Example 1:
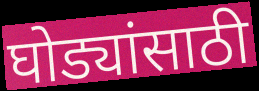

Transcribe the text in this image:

घोड्यांसाठी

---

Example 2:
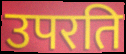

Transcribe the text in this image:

उपरति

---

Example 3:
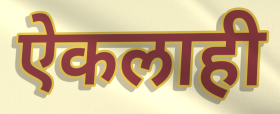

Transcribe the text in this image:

ऐकलाही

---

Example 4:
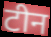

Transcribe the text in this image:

टीन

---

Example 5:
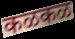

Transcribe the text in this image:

कळकळ